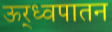
ऊर्ध्वपातन